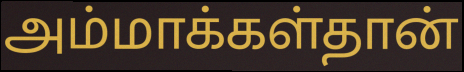
அம்மாக்கள்தான்